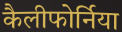
कैलीफोर्निया